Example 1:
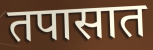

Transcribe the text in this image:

तपासात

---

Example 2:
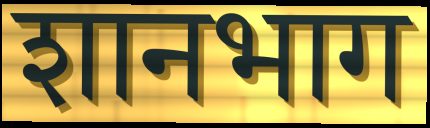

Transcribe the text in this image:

शानभाग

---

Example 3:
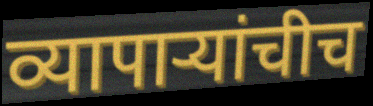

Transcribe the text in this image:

व्यापाऱ्यांचीच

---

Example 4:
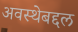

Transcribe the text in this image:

अवस्थेबद्दल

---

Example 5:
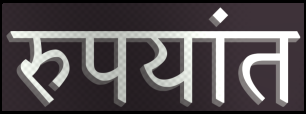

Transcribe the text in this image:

रुपयांत